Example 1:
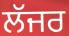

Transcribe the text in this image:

ਲੱਜਰ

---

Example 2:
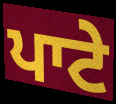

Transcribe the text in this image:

ਪਾਟੇ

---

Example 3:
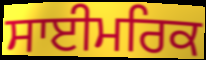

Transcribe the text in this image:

ਸਾਈਮਰਿਕ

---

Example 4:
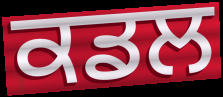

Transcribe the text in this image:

ਕਡਲ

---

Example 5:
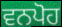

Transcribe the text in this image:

ਵਨਪੋਹ